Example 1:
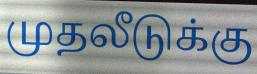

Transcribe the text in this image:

முதலீடுக்கு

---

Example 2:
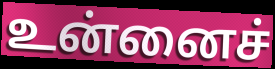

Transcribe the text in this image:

உன்னைச்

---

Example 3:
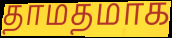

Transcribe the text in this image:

தாமதமாக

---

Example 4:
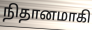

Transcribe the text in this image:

நிதானமாகி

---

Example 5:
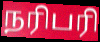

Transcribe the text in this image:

நரிபரி